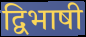
द्विभाषी